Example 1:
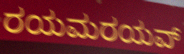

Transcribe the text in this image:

ರಯಮರಯವ್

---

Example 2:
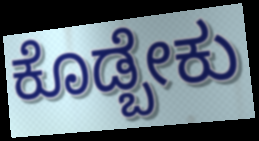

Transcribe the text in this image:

ಕೊಡ್ಬೇಕು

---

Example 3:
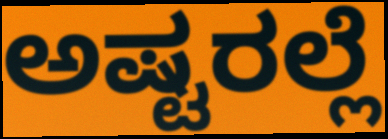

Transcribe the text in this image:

ಅಷ್ಟರಲ್ಲೆ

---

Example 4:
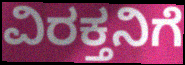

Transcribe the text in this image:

ವಿರಕ್ತನಿಗೆ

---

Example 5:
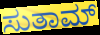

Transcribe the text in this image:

ಸುತಾಮ್